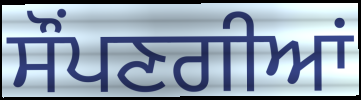
ਸੌਂਪਣਗੀਆਂ